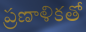
ప్రణాళికతో